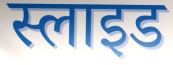
स्लाइड